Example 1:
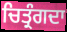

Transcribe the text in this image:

ਚਿਤ੍ਰੰਗਦਾ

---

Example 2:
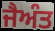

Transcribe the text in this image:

ਜੈਅੰਤ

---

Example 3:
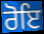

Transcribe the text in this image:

ਰੋਇ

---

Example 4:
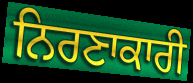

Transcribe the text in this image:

ਨਿਰਣਾਕਾਰੀ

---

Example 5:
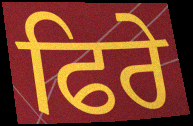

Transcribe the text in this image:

ਫਿਰੇ